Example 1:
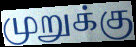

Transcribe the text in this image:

முறுக்கு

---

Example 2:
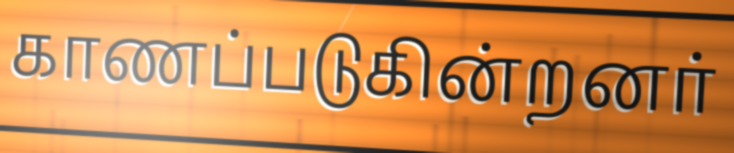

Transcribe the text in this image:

காணப்படுகின்றனர்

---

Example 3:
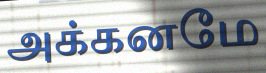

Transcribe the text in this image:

அக்கனமே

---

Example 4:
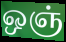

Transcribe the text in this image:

ஒஞ்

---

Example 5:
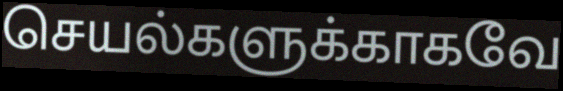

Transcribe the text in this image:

செயல்களுக்காகவே